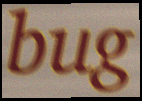
bug